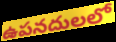
ఉపనదులలో